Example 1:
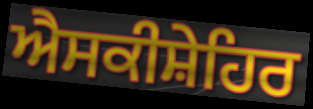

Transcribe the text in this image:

ਐਸਕੀਸ਼ੇਹਿਰ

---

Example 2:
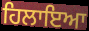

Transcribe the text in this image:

ਹਿਲਾਇਆ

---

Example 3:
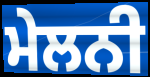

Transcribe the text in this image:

ਮੇਲਨੀ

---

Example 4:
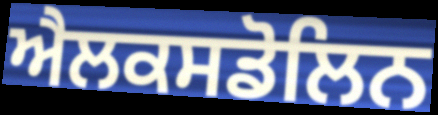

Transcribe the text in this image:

ਐਲਕਸਡੋਲਿਨ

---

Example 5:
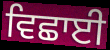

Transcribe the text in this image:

ਵਿਛਾਈ